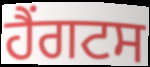
ਹੈਂਗਟਸ